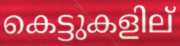
കെട്ടുകളില്